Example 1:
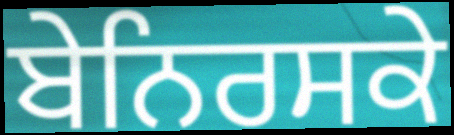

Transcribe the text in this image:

ਬੇਨਿਰਸਕੇ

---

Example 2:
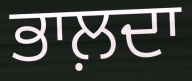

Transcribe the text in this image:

ਭਾਲ਼ਦਾ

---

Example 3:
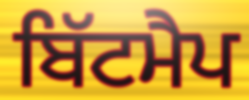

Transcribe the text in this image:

ਬਿੱਟਮੈਪ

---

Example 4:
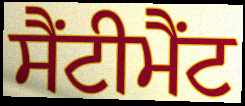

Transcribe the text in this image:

ਸੈਂਟੀਮੈਂਟ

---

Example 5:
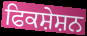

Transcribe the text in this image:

ਫਿਕਸ਼ੇਸ਼ਨ